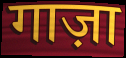
गाज़ा